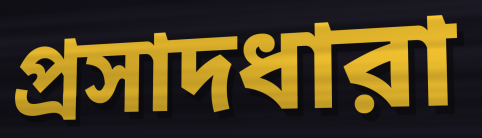
প্রসাদধারা